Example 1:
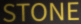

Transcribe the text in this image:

STONE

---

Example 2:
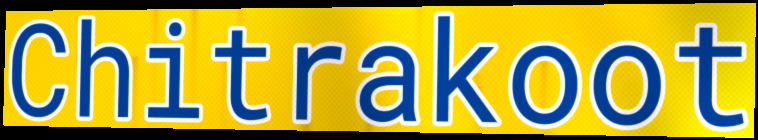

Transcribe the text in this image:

Chitrakoot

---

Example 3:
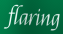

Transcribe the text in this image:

flaring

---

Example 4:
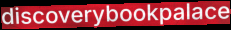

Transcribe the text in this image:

discoverybookpalace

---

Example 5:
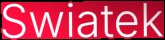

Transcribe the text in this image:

Swiatek